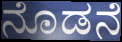
ನೊಡನೆ